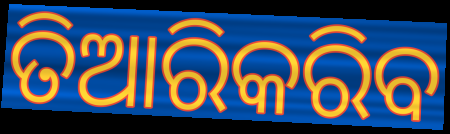
ତିଆରିକରିବ